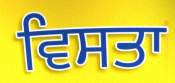
ਵਿਸਤਾ